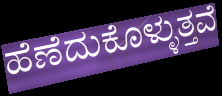
ಹೆಣೆದುಕೊಳ್ಳುತ್ತವೆ